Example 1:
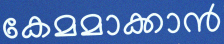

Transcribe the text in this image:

കേമമാക്കാൻ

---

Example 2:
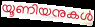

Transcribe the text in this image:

യൂണിയനുകൾ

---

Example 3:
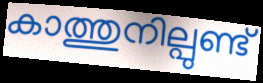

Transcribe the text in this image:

കാത്തുനില്പുണ്ട്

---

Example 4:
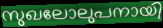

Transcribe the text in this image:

സുഖലോലുപനായി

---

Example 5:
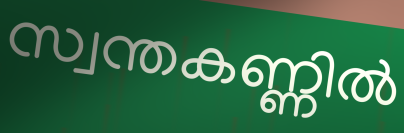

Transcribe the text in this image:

സ്വന്തകണ്ണിൽ